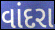
વાંદરા